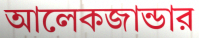
আলেকজান্ডার